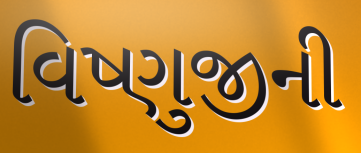
વિષ્ણુજીની